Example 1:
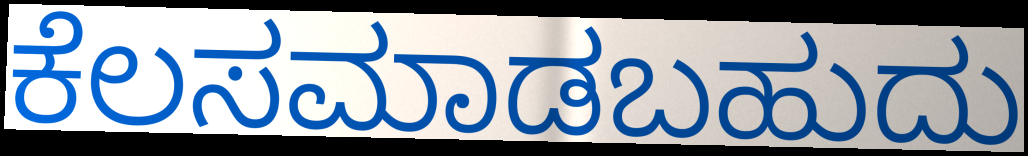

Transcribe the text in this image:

ಕೆಲಸಮಾಡಬಹುದು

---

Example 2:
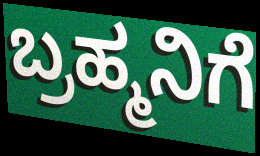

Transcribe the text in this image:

ಬ್ರಹ್ಮನಿಗೆ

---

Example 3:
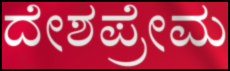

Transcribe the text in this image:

ದೇಶಪ್ರೇಮ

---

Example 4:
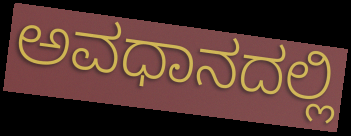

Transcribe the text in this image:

ಅವಧಾನದಲ್ಲಿ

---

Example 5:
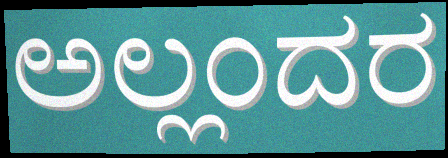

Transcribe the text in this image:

ಅಲ್ಲಂದರ